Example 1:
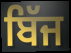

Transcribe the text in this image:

ਬਿੱਜ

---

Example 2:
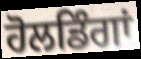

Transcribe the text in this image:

ਹੋਲਡਿੰਗਾਂ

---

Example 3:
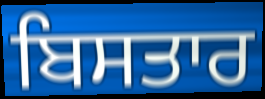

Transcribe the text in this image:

ਬਿਸਤਾਰ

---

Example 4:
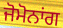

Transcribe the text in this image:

ਜੋਮੋਨਾਂਗ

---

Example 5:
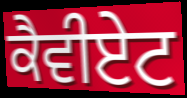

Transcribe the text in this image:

ਕੈਵੀਏਟ